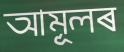
আমূলৰ